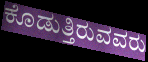
ಕೊಡುತ್ತಿರುವವರು